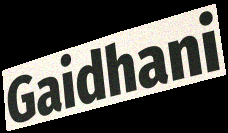
Gaidhani